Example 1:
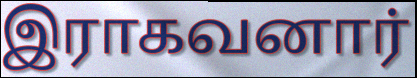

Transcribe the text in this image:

இராகவனார்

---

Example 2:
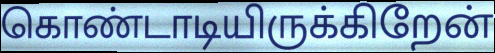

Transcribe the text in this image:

கொண்டாடியிருக்கிறேன்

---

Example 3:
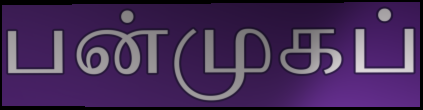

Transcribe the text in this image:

பன்முகப்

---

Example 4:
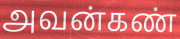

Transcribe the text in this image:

அவன்கண்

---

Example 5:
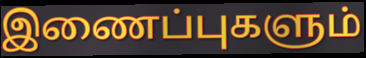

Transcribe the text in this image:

இணைப்புகளும்